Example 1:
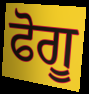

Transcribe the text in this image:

ਫੋਗੂ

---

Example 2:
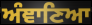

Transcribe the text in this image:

ਅੰਞਾਣਿਆ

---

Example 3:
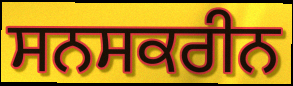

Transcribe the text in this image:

ਸਨਸਕਰੀਨ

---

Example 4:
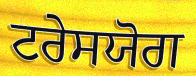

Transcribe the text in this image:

ਟਰੇਸਯੋਗ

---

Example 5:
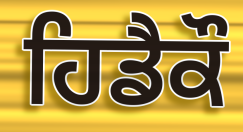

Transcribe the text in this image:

ਹਿਡੈਕੌ